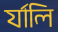
র্যালি